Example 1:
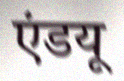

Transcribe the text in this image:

एंडयू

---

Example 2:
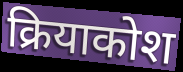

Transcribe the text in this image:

क्रियाकोश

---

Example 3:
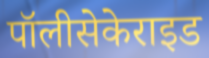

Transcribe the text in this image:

पॉलीसेकेराइड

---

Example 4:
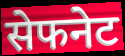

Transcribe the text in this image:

सेफनेट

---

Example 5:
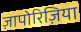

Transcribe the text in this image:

ज़ापोरिज़िया